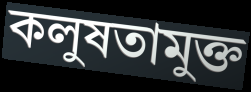
কলুষতামুক্ত